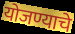
योजण्याचे